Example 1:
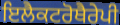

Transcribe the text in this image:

ਇਲੈਕਟਰੋਥੈਰੇਪੀ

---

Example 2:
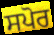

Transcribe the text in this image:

ਸਪੋਰ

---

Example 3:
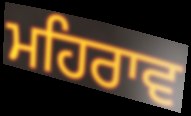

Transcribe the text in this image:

ਮਹਿਰਾਵ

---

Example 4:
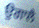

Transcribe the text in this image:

ਉਗਾਲੈ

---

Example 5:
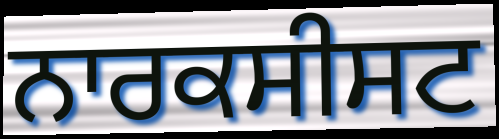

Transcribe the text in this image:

ਨਾਰਕਸੀਸਟ